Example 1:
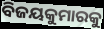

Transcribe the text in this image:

ବିଜୟକୁମାରକୁ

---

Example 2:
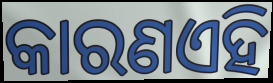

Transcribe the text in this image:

କାରଣଏହି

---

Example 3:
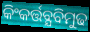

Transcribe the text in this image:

କିଂକର୍ତ୍ତବ୍ଯବିମୁଢ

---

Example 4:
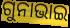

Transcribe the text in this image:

ଗୁନାଭାଇ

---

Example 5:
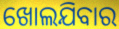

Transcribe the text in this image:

ଖୋଲଯିବାର